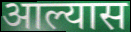
आल्यास